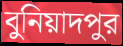
বুনিয়াদপুর